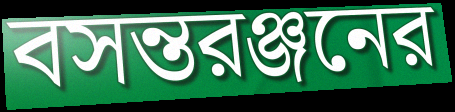
বসন্তরঞ্জনের